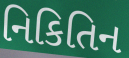
નિકિતિન